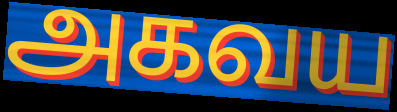
அகவய